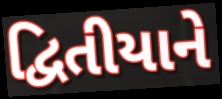
દ્વિતીયાને